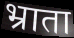
भ्राता